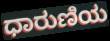
ಧಾರುಣಿಯ